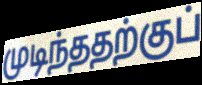
முடிந்ததற்குப்